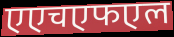
एएचएफएल